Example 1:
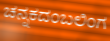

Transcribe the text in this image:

ಚನ್ನಕದಂಬಲಿಂಗ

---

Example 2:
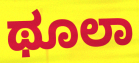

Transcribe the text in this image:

ಥೂಲಾ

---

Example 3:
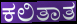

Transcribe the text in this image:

ಕಲಿತಾತ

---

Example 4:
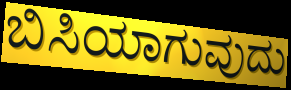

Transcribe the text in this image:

ಬಿಸಿಯಾಗುವುದು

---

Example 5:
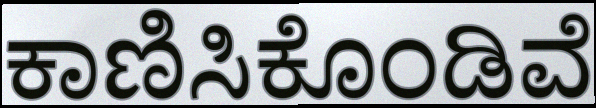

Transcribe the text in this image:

ಕಾಣಿಸಿಕೊಂಡಿವೆ